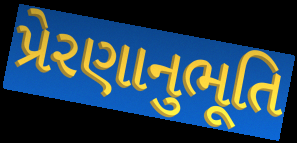
પ્રેરણાનુભૂતિ